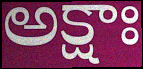
అక్షాః